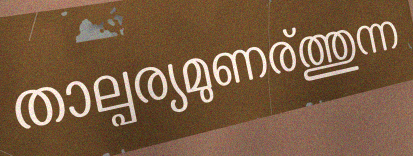
താല്പര്യമുണര്ത്തുന്ന